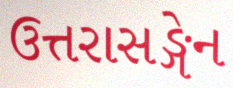
ઉત્તરાસઙ્ગેન